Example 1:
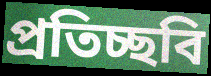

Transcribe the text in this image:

প্রতিচ্ছবি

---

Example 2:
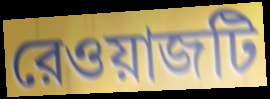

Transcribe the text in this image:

রেওয়াজটি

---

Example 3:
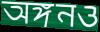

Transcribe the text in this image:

অঙ্গনও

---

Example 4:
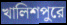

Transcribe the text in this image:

খালিশপুরে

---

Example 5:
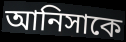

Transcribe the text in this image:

আনিসাকে